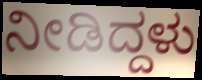
ನೀಡಿದ್ದಳು